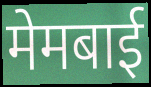
मेमबाई